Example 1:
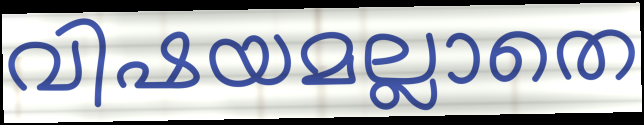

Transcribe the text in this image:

വിഷയമല്ലാതെ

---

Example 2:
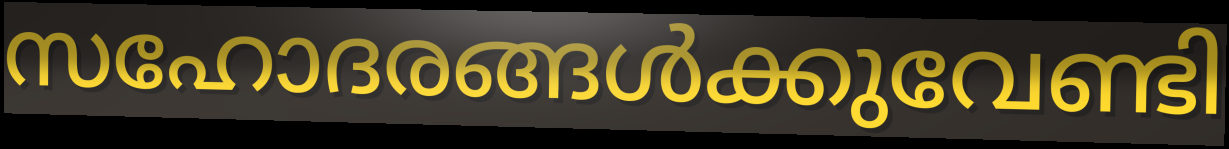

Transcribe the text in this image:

സഹോദരങ്ങൾക്കുവേണ്ടി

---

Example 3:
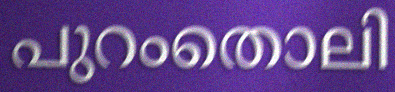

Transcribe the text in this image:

പുറംതൊലി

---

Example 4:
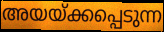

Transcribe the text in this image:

അയയ്ക്കപ്പെടുന്ന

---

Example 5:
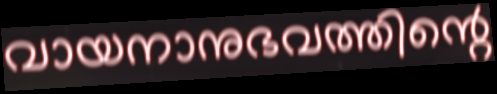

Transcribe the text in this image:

വായനാനുഭവത്തിന്റെ